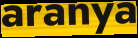
aranya